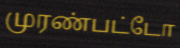
முரண்பட்டோ